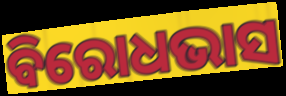
ବିରୋଧଭାସ